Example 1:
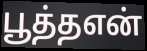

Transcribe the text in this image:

பூத்தஎன்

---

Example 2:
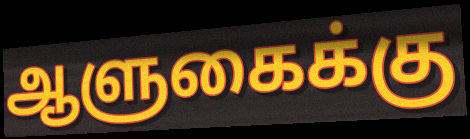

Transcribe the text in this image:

ஆளுகைக்கு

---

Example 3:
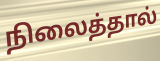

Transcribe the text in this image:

நிலைத்தால்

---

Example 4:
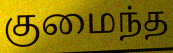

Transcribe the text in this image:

குமைந்த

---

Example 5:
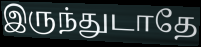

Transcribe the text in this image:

இருந்துடாதே